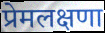
प्रेमलक्षणा